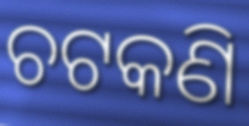
ଚଟକଣି